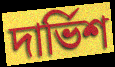
দার্ভিশ